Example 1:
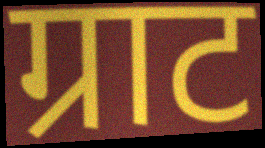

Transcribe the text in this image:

ग्राट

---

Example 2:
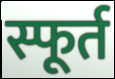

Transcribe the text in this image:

स्‍फूर्त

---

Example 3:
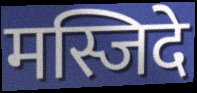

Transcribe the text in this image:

मस्जिदे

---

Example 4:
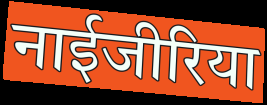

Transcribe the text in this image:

नाईजीरिया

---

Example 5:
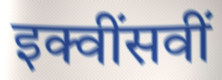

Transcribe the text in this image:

इक्वींसवीं